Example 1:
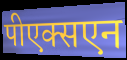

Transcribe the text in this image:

पीएक्सएन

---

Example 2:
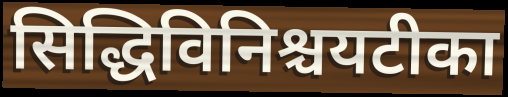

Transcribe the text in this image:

सिद्धिविनिश्चयटीका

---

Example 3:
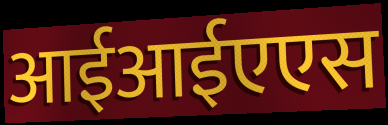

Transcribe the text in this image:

आईआईएएस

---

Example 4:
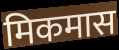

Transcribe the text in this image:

मिकमास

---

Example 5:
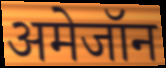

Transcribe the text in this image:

अमेजॉन